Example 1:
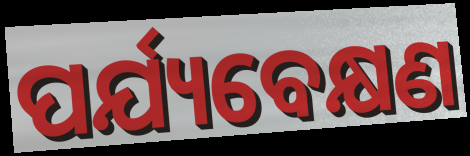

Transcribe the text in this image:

ପର୍ଯ୍ୟବେକ୍ଷଣ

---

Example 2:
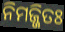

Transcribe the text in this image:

ନିମଜ୍ଜିତଃ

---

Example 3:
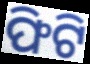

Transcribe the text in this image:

ଫିଟି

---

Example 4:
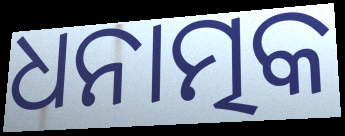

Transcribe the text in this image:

ଧନାତ୍ମକ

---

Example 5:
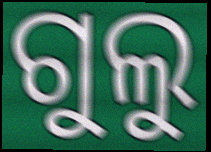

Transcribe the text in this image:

ଗୁଲୁ